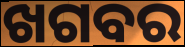
ଖଗବର